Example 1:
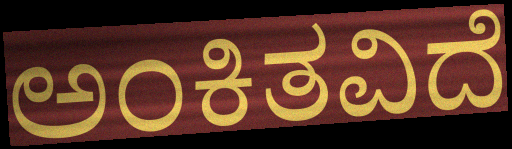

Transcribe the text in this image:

ಅಂಕಿತವಿದೆ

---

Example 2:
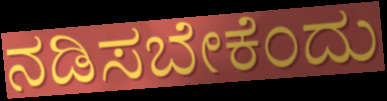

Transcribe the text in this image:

ನಡಿಸಬೇಕೆಂದು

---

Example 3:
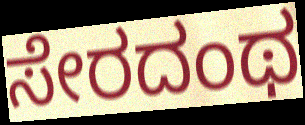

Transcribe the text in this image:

ಸೇರದಂಥ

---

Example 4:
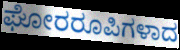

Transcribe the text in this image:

ಘೋರರೂಪಿಗಳಾದ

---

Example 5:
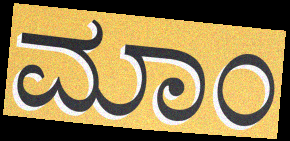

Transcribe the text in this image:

ಮಾಂ